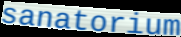
sanatorium